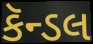
કૅન્ડલ